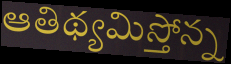
ఆతిథ్యమిస్తోన్న